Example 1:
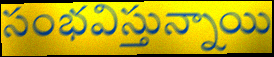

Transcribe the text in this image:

సంభవిస్తున్నాయి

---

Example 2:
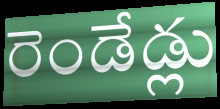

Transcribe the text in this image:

రెండేడ్లు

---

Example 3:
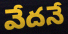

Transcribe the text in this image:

వేదనే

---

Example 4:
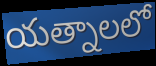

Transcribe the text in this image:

యత్నాలలో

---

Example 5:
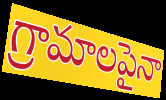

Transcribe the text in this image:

గ్రామాలపైనా